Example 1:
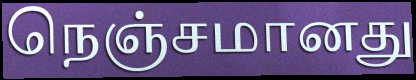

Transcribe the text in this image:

நெஞ்சமானது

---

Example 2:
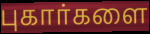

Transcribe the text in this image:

புகார்களை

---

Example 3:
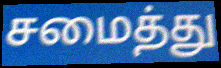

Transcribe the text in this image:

சமைத்து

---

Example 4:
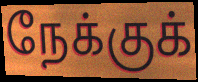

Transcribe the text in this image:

நேக்குக்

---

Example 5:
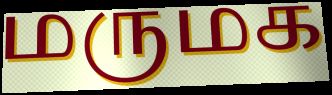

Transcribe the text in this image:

மருமக